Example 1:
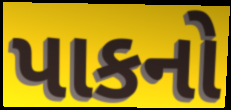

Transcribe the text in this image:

પાકનો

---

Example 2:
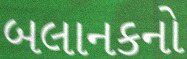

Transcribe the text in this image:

બલાનકનો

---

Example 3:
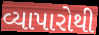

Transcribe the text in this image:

વ્યાપારોથી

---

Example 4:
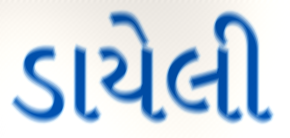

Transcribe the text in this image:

ડાયેલી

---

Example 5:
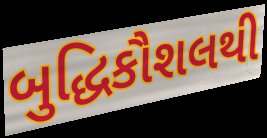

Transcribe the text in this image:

બુદ્ધિકૌશલથી